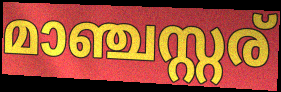
മാഞ്ചസ്റ്റര്